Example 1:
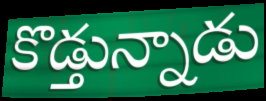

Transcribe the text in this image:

కొడ్తున్నాడు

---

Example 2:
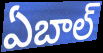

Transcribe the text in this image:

ఏబాల్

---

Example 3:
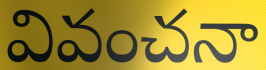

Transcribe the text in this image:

వివంచనా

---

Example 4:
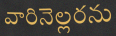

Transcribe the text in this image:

వారినెల్లరను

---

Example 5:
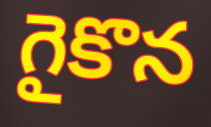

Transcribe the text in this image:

గైకొన